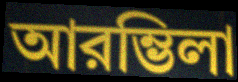
আরম্ভিলা